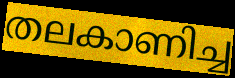
തലകാണിച്ച